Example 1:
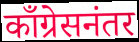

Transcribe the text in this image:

काँग्रेसनंतर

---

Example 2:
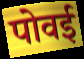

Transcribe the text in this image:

पोवई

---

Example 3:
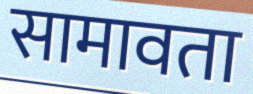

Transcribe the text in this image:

सामावता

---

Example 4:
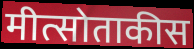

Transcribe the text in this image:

मीत्सोताकीस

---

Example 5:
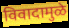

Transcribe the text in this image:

विवादामुळे